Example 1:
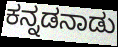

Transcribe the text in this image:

ಕನ್ನಡನಾಡು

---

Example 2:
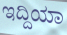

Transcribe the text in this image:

ಇದ್ದಿಯಾ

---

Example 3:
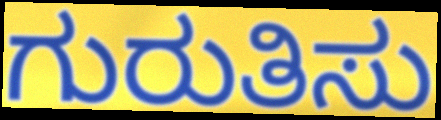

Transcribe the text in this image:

ಗುರುತಿಸು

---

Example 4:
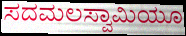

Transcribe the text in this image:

ಸದಮಲಸ್ವಾಮಿಯೂ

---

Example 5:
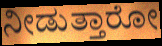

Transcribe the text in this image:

ನೀಡುತ್ತಾರೋ